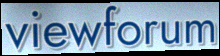
viewforum